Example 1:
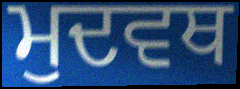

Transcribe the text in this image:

ਮੁਦਵਥ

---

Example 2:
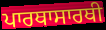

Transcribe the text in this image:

ਪਾਰਥਾਸਾਰਥੀ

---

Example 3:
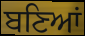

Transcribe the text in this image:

ਬਣਿਆਂ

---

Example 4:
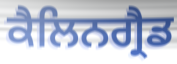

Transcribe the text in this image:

ਕੈਲਿਨਗ੍ਰੈਡ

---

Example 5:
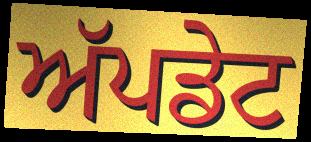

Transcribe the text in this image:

ਅੱਪਡੇਟ